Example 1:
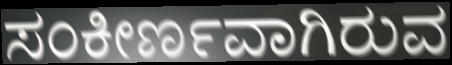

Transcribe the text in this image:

ಸಂಕೀರ್ಣವಾಗಿರುವ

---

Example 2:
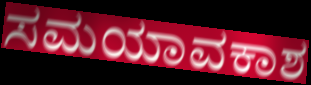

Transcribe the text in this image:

ಸಮಯಾವಕಾಶ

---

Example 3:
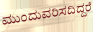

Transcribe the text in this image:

ಮುಂದುವರಿಸದಿದ್ದರೆ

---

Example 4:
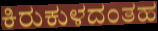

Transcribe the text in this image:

ಕಿರುಕುಳದಂತಹ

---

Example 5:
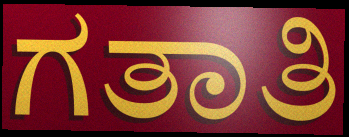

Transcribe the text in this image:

ಗತಾತಿ